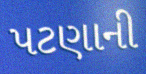
પટણાની